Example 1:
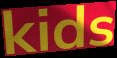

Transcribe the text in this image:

kids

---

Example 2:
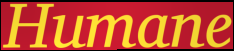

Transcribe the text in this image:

Humane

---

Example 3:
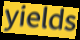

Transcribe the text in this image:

yields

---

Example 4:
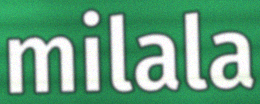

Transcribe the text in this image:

milala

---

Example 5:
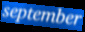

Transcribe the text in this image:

september